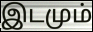
இடமும்